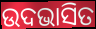
ଉଦଭାସିତ